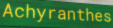
Achyranthes